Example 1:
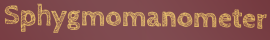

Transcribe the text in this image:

Sphygmomanometer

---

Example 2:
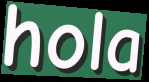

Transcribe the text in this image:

hola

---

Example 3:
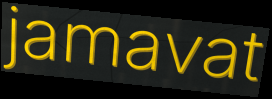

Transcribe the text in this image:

jamavat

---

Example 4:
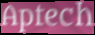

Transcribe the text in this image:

Aptech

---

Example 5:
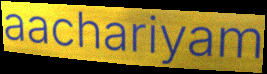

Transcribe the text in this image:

aachariyam